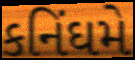
કનિંઘમે